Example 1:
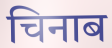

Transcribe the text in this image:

चिनाब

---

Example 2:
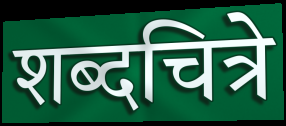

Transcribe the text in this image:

शब्दचित्रे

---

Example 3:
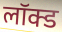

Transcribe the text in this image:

लॉक्ड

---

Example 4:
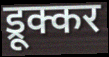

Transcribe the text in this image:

ड्रूक्कर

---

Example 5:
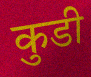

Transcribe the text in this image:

कुडी